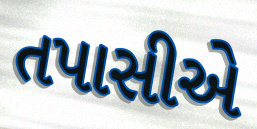
તપાસીએ